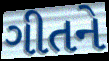
ગીતને